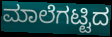
ಮಾಲೆಗಟ್ಟಿದ